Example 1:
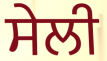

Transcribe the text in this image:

ਸੇਲੀ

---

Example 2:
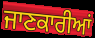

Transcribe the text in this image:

ਜਾਣਕਾਰੀਆਂ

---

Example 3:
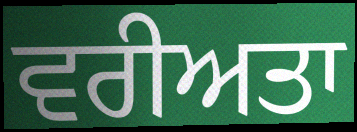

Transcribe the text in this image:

ਵਰੀਅਤਾ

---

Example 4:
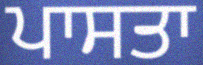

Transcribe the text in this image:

ਪਾਸਤਾ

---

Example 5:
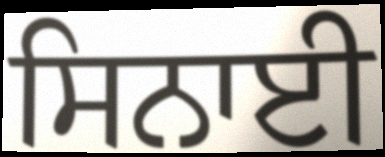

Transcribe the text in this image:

ਸਿਨਾਈ